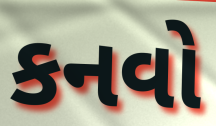
કનવો